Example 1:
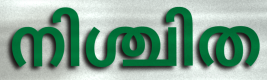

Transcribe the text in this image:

നിശ്ചിത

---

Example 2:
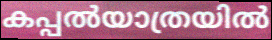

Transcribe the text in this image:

കപ്പൽയാത്രയിൽ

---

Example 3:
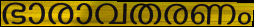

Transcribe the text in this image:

ഭാരാവതരണം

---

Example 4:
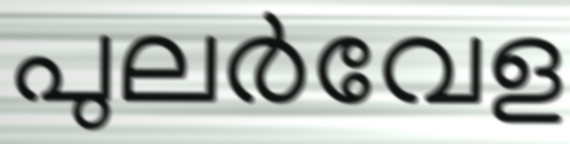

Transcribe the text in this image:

പുലർവേള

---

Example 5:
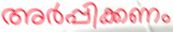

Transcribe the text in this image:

അർപ്പിക്കണം